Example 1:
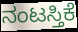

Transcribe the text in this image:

ನಂಟಸ್ತಿಕೆ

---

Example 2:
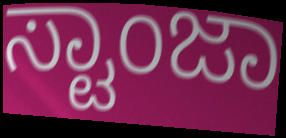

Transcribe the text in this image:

ಸ್ಟಾಂಜಾ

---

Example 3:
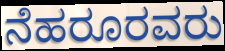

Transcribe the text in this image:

ನೆಹರೂರವರು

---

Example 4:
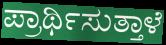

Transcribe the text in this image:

ಪ್ರಾರ್ಥಿಸುತ್ತಾಳೆ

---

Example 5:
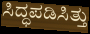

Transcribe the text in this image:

ಸಿದ್ಧಪಡಿಸಿತ್ತು